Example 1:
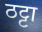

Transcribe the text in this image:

ठट्टा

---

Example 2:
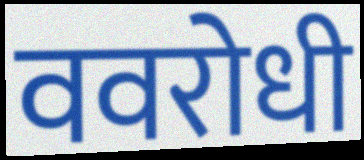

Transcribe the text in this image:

ववरोधी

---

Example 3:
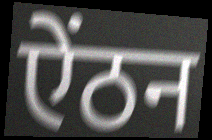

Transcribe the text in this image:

ऐंठन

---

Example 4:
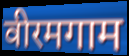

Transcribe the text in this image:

वीरमगाम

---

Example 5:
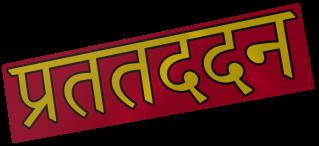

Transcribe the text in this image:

प्रततददन